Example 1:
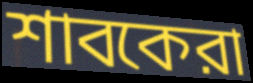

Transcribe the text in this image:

শাবকেরা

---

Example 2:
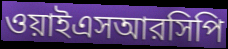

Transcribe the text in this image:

ওয়াইএসআরসিপি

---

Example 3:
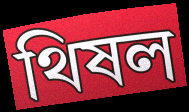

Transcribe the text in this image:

থিষল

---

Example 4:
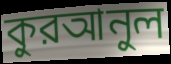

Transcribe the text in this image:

কুরআনুল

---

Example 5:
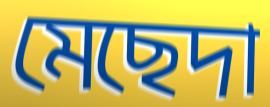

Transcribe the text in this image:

মেছেদা